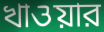
খাওয়ার